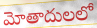
మోతాదులలో